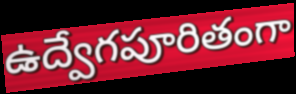
ఉద్వేగపూరితంగా